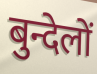
बुन्देलों